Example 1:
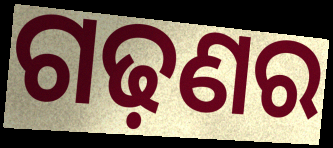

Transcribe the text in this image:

ଗଢ଼ଣର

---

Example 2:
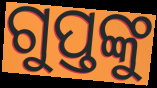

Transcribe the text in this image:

ଗୁପ୍ତଙ୍କୁ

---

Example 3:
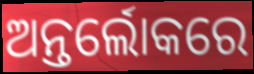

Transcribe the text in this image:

ଅନ୍ତର୍ଲୋକରେ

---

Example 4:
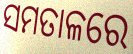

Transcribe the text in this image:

ସମତାଳରେ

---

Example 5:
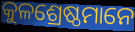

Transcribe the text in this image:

କୁଳଶ୍ରେଷ୍ଠମାନେ